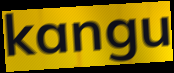
kangu